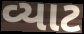
વ્યાટ